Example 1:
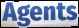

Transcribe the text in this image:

Agents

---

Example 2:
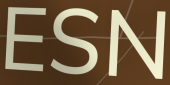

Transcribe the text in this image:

ESN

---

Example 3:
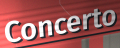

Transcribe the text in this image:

Concerto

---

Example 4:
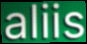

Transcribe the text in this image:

aliis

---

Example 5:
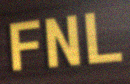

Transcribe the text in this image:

FNL